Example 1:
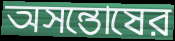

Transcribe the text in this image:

অসন্তোষের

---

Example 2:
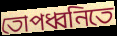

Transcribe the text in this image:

তোপধ্বনিতে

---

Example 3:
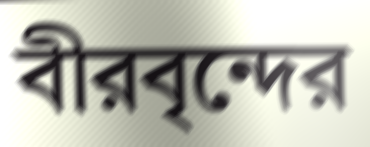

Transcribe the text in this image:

বীরবৃন্দের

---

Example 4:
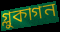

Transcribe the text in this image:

গ্লুকাগন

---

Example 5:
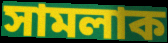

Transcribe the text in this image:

সামলাক